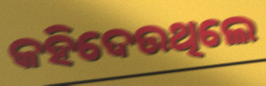
କହିଦେଉଥିଲେ